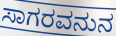
ಸಾಗರವನುನ